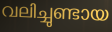
വലിച്ചുണ്ടായ